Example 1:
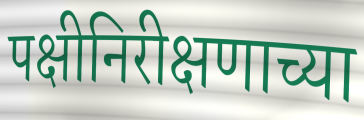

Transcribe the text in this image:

पक्षीनिरीक्षणाच्या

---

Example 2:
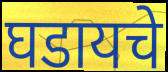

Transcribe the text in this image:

घडायचे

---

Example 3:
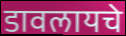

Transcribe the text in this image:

डावलायचे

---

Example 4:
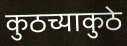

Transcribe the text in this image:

कुठच्याकुठे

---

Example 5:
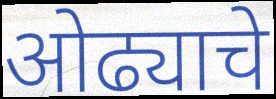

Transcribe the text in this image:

ओढ्याचे